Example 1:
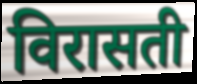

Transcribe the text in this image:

विरासती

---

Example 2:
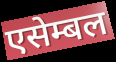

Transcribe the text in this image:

एसेम्बल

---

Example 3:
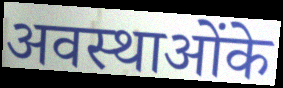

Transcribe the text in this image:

अवस्थाओंके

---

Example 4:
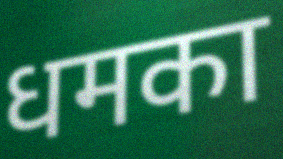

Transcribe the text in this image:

धमका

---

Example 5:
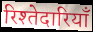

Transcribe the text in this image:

रिश्तेदारियाँ